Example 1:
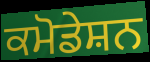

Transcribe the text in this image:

ਕਮੋਡੇਸ਼ਨ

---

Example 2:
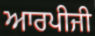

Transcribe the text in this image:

ਆਰਪੀਜੀ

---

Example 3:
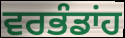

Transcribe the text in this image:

ਵਰਭੰਡਾਂਹ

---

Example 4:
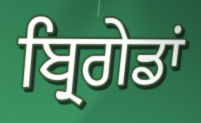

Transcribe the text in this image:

ਬ੍ਰਿਗੇਡਾਂ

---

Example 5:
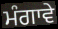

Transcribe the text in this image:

ਮੰਗਾਵੇ